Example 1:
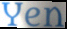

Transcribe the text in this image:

Yen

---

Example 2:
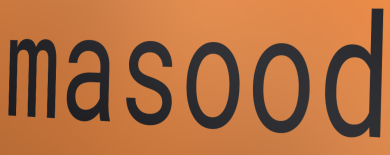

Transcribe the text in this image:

masood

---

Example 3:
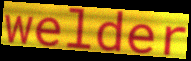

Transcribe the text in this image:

welder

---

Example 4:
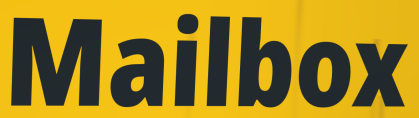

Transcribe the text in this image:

Mailbox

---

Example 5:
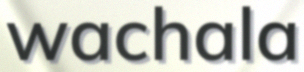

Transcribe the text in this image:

wachala